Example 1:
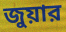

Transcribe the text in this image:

জুয়ার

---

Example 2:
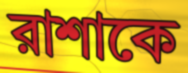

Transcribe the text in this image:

রাশাকে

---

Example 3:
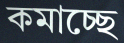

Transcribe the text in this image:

কমাচ্ছে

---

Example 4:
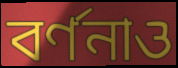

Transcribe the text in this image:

বর্ণনাও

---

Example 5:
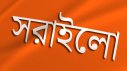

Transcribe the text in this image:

সরাইলো